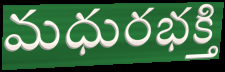
మధురభక్తి